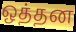
ஒத்தன